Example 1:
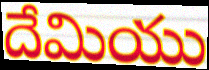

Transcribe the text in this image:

దేమియు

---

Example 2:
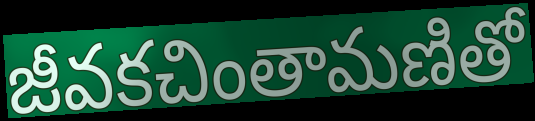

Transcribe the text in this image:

జీవకచింతామణితో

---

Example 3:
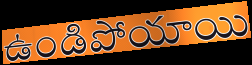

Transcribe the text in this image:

ఉండిపోయాయి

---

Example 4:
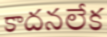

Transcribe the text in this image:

కాదనలేక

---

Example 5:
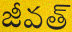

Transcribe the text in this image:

జీవత్